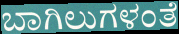
ಬಾಗಿಲುಗಳಂತೆ